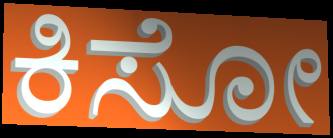
ಕಿಸೋ